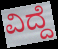
ವಿದ್ದೆ